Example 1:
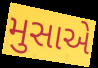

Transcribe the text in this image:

મુસાએ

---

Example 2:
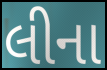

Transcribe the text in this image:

લીના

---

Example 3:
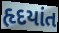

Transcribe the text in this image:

હૃદયાંત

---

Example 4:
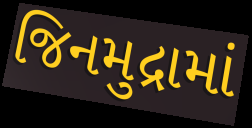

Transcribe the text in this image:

જિનમુદ્રામાં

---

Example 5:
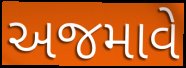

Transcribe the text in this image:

અજમાવે